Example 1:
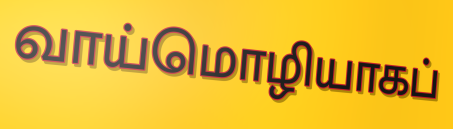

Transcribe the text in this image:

வாய்மொழியாகப்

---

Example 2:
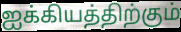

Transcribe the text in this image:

ஐக்கியத்திற்கும்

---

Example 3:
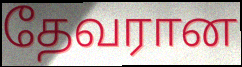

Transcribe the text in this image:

தேவரான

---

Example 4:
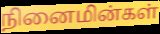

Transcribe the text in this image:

நினைமின்கள்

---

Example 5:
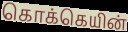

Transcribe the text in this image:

கொக்கெயின்